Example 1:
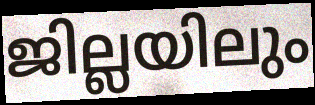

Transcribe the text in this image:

ജില്ലയിലും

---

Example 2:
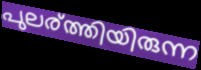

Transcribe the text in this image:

പുലര്ത്തിയിരുന്ന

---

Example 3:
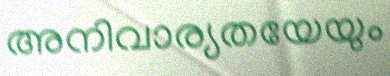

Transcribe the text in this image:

അനിവാര്യതയേയും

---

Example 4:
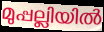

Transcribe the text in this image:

മുപ്പല്ലിയിൽ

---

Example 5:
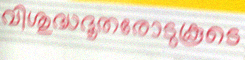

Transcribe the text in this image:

വിശുദ്ധദൂതരോടുകൂടെ